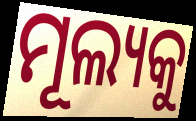
ମୂଲ୍ୟକୁ